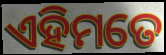
ଏହିମତେ